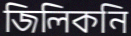
জিলিকনি